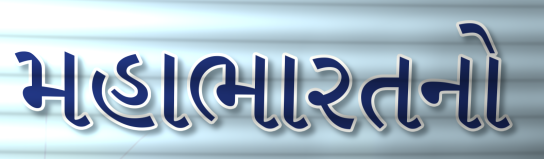
મહાભારતનો